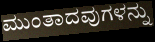
ಮುಂತಾದವುಗಳನ್ನು